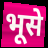
भूसे